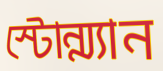
স্টোন্ম্যান